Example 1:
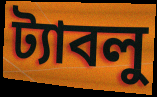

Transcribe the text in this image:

ট্যাবলু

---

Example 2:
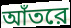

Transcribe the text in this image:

আঁতরে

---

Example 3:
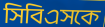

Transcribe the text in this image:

সিবিএসকে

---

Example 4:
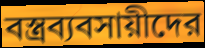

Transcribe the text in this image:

বস্ত্রব্যবসায়ীদের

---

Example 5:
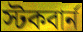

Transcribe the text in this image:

স্টকবার্ন